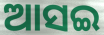
ଆସଇ